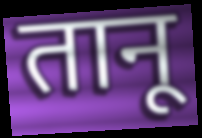
तानू